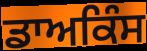
ਡਾਅਕਿੰਸ